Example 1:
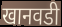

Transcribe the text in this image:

खानवडी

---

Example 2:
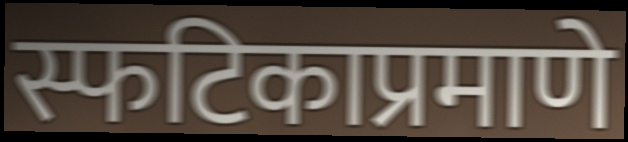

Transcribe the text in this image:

स्फटिकाप्रमाणे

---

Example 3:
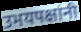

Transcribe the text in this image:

उभयपक्षांनी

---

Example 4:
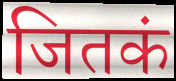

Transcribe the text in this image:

जितकं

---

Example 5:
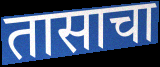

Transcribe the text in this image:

तासाचा